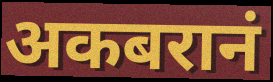
अकबरानं